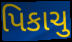
પિકાચુ